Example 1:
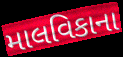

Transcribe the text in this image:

માલવિકાના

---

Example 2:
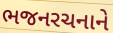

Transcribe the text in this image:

ભજનરચનાને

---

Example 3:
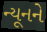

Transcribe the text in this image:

ન્યૂનને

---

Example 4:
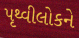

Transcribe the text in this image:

પૃથ્વીલોકને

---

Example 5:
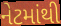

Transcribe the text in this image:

નેટમાંથી